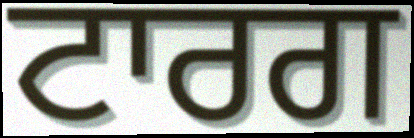
ਟਾਰਗ